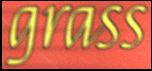
grass